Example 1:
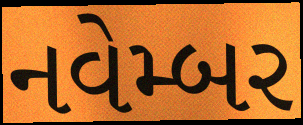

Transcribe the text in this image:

નવેમ્બર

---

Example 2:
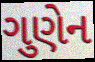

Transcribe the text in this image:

ગુણેન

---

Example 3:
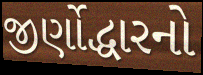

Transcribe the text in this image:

જીર્ણોદ્ધારનો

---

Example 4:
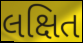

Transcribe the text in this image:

લક્ષિત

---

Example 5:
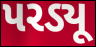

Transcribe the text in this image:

પરડ્યૂ